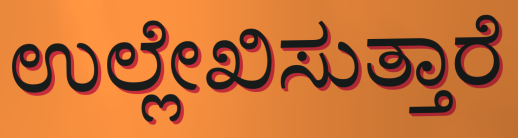
ಉಲ್ಲೇಖಿಸುತ್ತಾರೆ